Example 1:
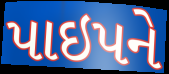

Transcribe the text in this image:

પાઇપને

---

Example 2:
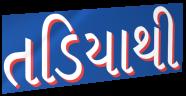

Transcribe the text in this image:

તડિયાથી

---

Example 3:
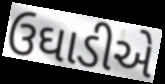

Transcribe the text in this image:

ઉઘાડીએ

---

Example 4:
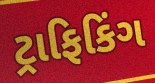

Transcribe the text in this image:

ટ્રાફિકિંગ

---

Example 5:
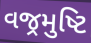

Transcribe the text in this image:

વજ્રમુષ્ટિ